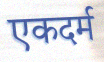
एकदर्म